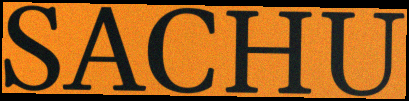
SACHU